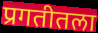
प्रगतीतला